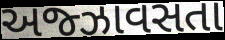
અજ્ઝાવસતા